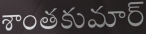
శాంతకుమార్